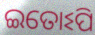
ଇତୋଽପି